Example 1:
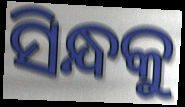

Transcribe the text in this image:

ସିନ୍ଧକୁ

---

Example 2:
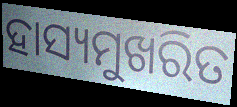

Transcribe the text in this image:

ହାସ୍ୟମୁଖରିତ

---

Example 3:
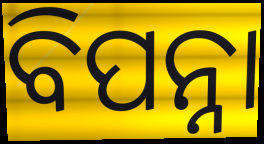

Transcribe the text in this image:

ବିପନ୍ନା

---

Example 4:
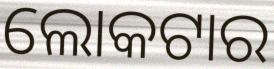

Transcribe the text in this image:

ଲୋକଟାର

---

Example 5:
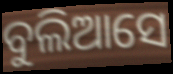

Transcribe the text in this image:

ବୁଲିଆସେ